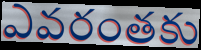
ఎవరంతకు